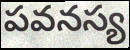
పవనస్య